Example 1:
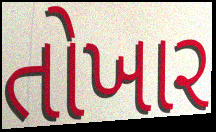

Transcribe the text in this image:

તોખાર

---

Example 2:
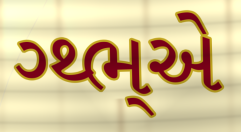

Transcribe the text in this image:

ગ્થ્ભ્એ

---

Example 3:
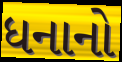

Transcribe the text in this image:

ધનાનો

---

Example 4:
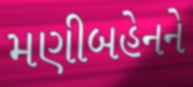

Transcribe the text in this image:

મણીબહેનને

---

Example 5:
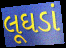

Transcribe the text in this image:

લૂઘડાં